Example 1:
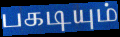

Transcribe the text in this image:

பகடியும்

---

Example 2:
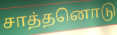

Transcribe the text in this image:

சாத்தனொடு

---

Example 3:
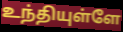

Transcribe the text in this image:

உந்தியுள்ளே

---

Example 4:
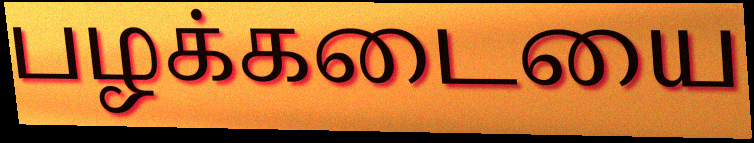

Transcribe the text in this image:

பழக்கடையை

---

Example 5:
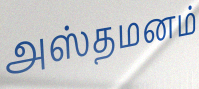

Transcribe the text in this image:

அஸ்தமனம்